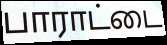
பாராட்டை